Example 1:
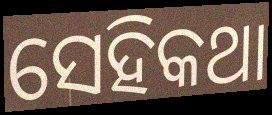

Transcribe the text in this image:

ସେହିକଥା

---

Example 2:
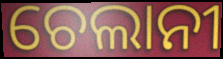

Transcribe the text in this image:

ଚେଲାନୀ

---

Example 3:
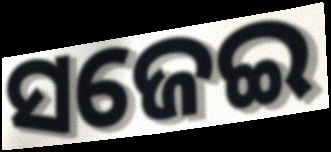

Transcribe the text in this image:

ସଜେଇ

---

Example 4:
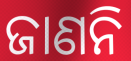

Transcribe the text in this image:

ଜାଣନି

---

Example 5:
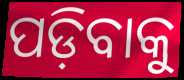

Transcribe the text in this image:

ପଡ଼ିବାକୁ